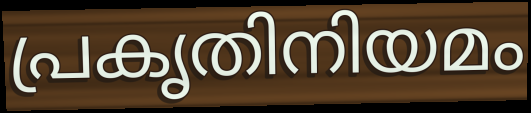
പ്രകൃതിനിയമം